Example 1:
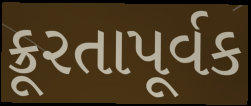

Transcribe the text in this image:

ક્રૂરતાપૂર્વક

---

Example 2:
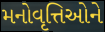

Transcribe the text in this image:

મનોવૃત્તિઓને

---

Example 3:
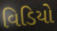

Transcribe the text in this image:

વિડિયો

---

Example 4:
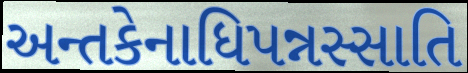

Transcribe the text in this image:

અન્તકેનાધિપન્નસ્સાતિ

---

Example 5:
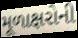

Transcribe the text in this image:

મૂળાક્ષરોની